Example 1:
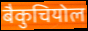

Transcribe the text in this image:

बैकुचियोल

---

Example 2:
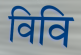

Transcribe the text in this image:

विवि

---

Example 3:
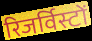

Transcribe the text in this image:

रिजर्विस्टों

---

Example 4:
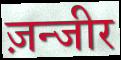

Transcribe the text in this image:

ज़न्जीर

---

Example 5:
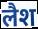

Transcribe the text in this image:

लैश